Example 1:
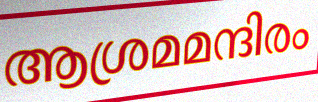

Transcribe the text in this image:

ആശ്രമമന്ദിരം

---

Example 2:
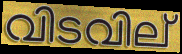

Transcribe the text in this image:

വിടവില്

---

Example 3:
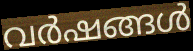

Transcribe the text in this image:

വർഷങ്ങൾ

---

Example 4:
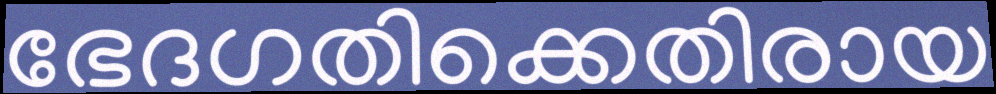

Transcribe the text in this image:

ഭേദഗതിക്കെതിരായ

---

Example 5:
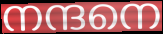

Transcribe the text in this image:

നന്ദനെ